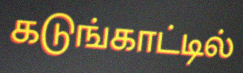
கடுங்காட்டில்